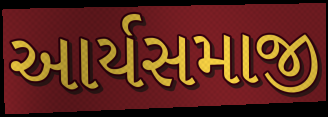
આર્યસમાજી